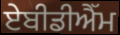
ਏਬੀਡੀਐੱਮ